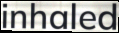
inhaled